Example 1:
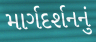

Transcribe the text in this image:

માર્ગદર્શનનું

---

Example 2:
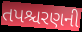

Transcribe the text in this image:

તપશ્ચરણની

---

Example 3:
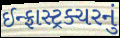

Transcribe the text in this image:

ઈન્ફ્રાસ્ટ્રક્ચરનું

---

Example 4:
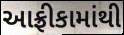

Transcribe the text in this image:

આફ્રીકામાંથી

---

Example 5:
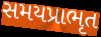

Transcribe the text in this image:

સમયપ્રાભૃત